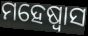
ମହେଷ୍ୱାସ